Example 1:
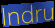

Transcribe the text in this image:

Indru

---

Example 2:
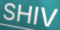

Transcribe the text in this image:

SHIV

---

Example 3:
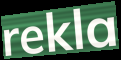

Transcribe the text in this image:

rekla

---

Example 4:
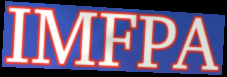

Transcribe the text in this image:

IMFPA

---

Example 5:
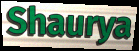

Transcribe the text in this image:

Shaurya